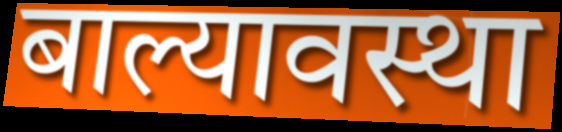
बाल्यावस्था